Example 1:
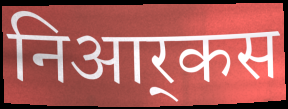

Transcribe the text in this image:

निआर्कस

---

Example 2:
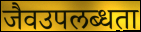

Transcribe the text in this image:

जैवउपलब्धता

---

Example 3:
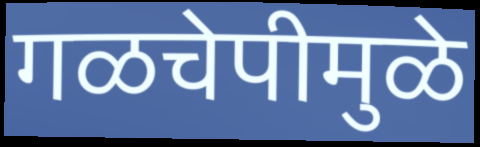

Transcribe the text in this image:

गळचेपीमुळे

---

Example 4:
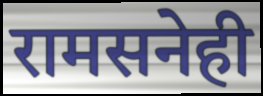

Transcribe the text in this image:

रामसनेही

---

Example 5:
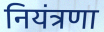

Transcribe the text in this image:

नियंत्रणा